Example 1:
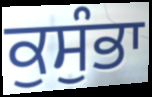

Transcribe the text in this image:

ਕੁਸੁੰਭਾ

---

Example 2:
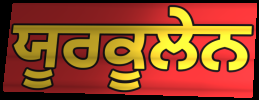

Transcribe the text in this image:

ਯੂਰਕੂਲੇਨ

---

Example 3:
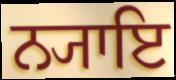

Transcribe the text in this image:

ਨ੍ਯਾਇ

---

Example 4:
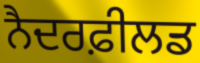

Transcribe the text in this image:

ਨੈਦਰਫ਼ੀਲਡ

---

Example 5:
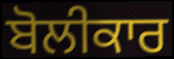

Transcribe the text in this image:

ਬੋਲੀਕਾਰ